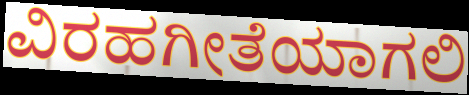
ವಿರಹಗೀತೆಯಾಗಲಿ